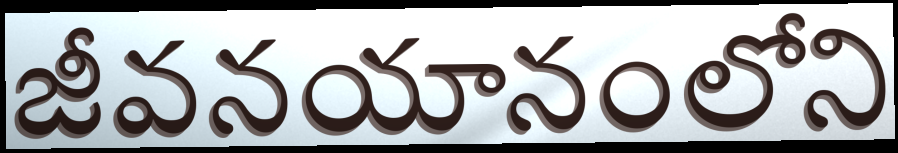
జీవనయానంలోని